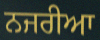
ਨਜਰੀਆ